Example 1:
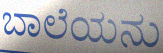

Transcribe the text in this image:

ಬಾಲೆಯನು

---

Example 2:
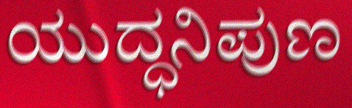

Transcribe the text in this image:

ಯುದ್ಧನಿಪುಣ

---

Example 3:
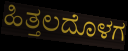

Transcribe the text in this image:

ಹಿತ್ತಲದೊಳಗ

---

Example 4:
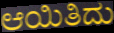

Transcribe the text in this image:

ಆಯಿತಿದು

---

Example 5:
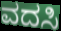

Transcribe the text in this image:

ವದಸಿ